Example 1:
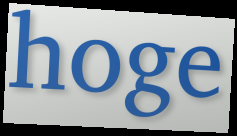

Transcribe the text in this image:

hoge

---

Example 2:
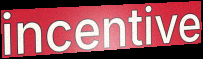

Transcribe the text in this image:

incentive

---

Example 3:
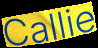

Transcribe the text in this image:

Callie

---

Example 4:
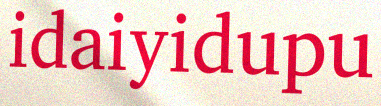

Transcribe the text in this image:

idaiyidupu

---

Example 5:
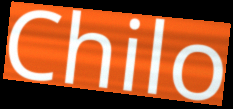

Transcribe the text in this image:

Chilo